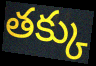
తక్కు